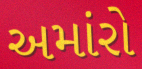
અમાંરો